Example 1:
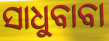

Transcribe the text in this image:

ସାଧୁବାବା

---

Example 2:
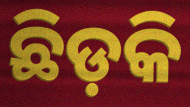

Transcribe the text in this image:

ଛିଡ଼କି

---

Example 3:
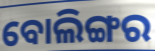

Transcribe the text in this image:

ବୋଲିଙ୍ଗର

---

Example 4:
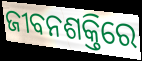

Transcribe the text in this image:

ଜୀବନଶକ୍ତିରେ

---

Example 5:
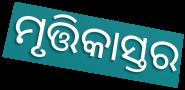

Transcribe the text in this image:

ମୃତ୍ତିକାସ୍ତର